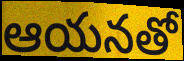
ఆయనతో